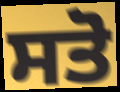
ਸਤੋ